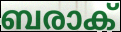
ബരാക്